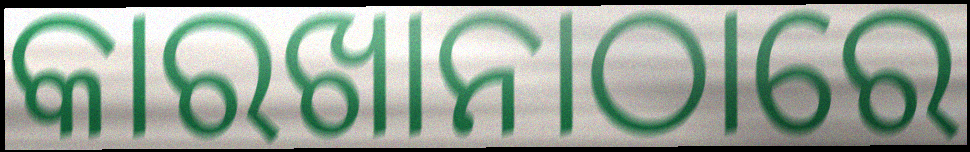
କାରଖାନାଠାରେ